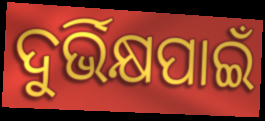
ଦୁର୍ଭିକ୍ଷପାଇଁ